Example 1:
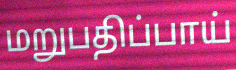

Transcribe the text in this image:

மறுபதிப்பாய்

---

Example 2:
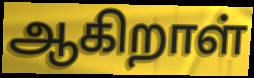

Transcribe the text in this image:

ஆகிறாள்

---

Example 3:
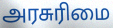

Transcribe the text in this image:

அரசுரிமை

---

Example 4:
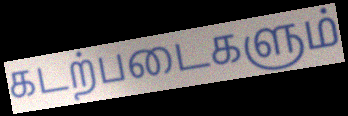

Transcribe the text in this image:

கடற்படைகளும்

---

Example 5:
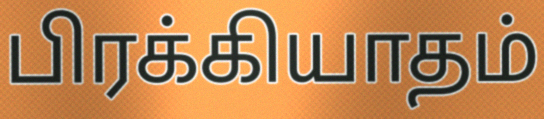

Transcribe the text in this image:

பிரக்கியாதம்